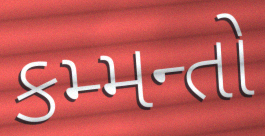
કમ્મન્તો